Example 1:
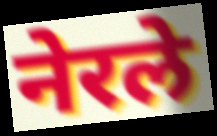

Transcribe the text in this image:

नेरले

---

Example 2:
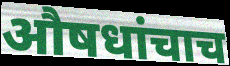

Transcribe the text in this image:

औषधांचाच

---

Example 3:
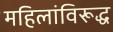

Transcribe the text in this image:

महिलांविरूद्ध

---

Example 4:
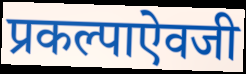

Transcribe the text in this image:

प्रकल्पाऐवजी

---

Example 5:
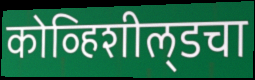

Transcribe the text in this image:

कोव्हिशील्डचा